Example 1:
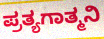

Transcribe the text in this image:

ಪ್ರತ್ಯಗಾತ್ಮನಿ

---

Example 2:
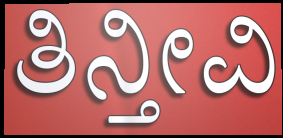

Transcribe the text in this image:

ತಿನ್ತೀವಿ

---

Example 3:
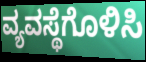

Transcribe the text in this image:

ವ್ಯವಸ್ಥೆಗೊಳಿಸಿ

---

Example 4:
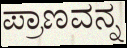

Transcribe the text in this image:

ಪ್ರಾಣವನ್ನ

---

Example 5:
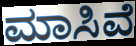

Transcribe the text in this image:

ಮಾಸಿವೆ